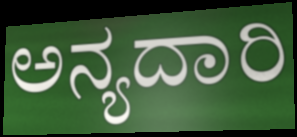
ಅನ್ಯದಾರಿ